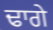
ਢਾਗੇ